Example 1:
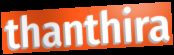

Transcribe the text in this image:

thanthira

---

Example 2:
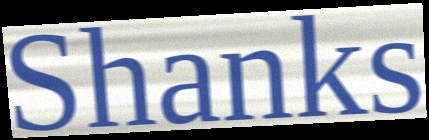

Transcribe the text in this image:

Shanks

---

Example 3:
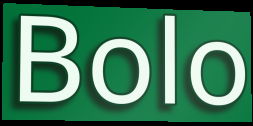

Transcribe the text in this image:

Bolo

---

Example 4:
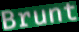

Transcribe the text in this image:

Brunt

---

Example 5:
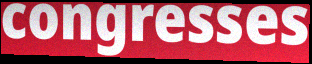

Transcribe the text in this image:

congresses